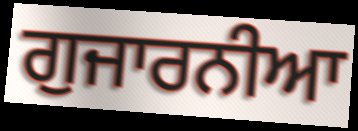
ਗੁਜਾਰਨੀਆ